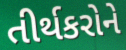
તીર્થકરોને